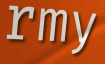
rmy